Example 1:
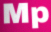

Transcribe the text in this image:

Mp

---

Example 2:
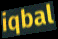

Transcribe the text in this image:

iqbal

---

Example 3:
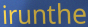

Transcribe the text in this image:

irunthe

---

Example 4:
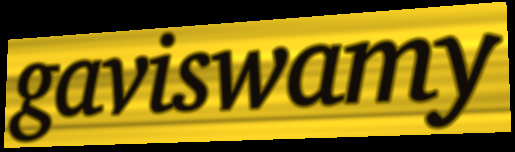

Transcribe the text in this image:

gaviswamy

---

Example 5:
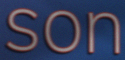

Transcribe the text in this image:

son